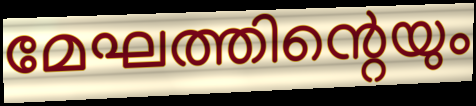
മേഘത്തിന്റെയും